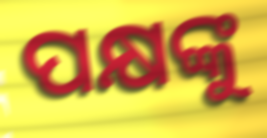
ପକ୍ଷଙ୍କୁ